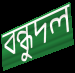
বন্ধুদল